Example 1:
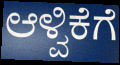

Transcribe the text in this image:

ಆಳ್ವಿಕೆಗೆ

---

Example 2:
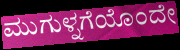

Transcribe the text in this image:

ಮುಗುಳ್ನಗೆಯೊಂದೇ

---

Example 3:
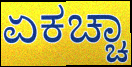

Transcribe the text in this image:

ಏಕಚ್ಚಾ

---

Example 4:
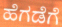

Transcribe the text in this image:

ಹೆಗಡೆಗೆ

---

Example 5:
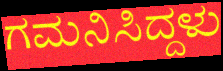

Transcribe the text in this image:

ಗಮನಿಸಿದ್ದಳು